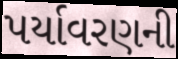
પર્યાવરણની